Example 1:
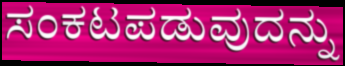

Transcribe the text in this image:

ಸಂಕಟಪಡುವುದನ್ನು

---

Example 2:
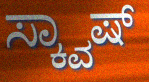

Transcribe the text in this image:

ಸ್ಕ್ವಾಷ್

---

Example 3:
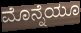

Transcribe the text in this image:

ಮೊನ್ನೆಯೂ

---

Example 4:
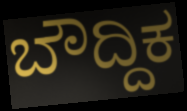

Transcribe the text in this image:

ಬೌದ್ದಿಕ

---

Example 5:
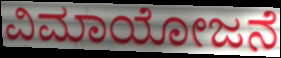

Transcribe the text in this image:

ವಿಮಾಯೋಜನೆ